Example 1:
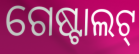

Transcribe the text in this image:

ଗେଷ୍ଟାଲଟ୍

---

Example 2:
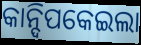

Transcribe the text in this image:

କାନ୍ଦିପକେଇଲା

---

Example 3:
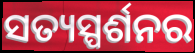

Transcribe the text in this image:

ସତ୍ୟସ୍ପର୍ଶନର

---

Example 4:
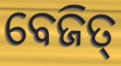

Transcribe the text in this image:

ବେଜିତ୍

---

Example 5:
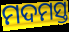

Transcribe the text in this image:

ମଦମସ୍ତ